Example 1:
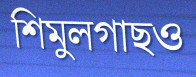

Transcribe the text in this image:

শিমুলগাছও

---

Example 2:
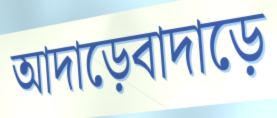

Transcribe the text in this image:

আদাড়েবাদাড়ে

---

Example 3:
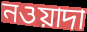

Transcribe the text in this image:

নওয়াদা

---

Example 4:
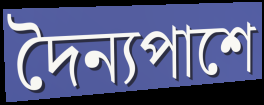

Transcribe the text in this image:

দৈন্যপাশে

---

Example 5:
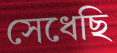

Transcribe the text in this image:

সেধেছি